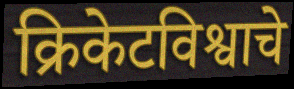
क्रिकेटविश्वाचे